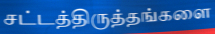
சட்டத்திருத்தங்களை